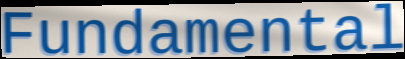
Fundamental